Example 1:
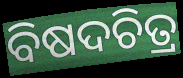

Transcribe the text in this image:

ବିଷଦଚିତ୍ର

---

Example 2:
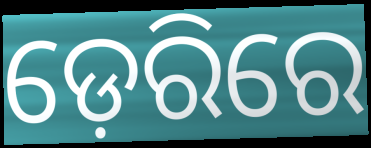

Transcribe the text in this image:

ଡ଼େରିରେ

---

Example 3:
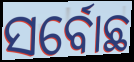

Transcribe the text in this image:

ସର୍ବୋଛ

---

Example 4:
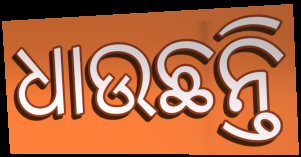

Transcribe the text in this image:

ଧାଉଛନ୍ତି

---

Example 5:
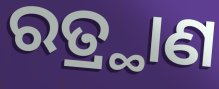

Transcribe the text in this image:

ରତ୍ର୍ଥାଣ